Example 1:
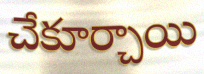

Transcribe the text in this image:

చేకూర్చాయి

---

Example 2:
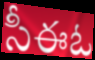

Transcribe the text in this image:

సీఈఓ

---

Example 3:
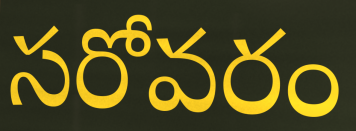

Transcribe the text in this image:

సరోవరం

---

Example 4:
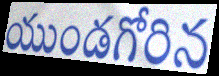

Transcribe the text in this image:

యుండగోరిన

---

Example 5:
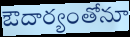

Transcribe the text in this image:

ఔదార్యంతోనూ